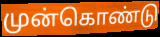
முன்கொண்டு